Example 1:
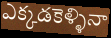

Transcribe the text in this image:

ఎక్కడకెళ్ళినా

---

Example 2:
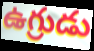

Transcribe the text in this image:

ఉగ్రుడు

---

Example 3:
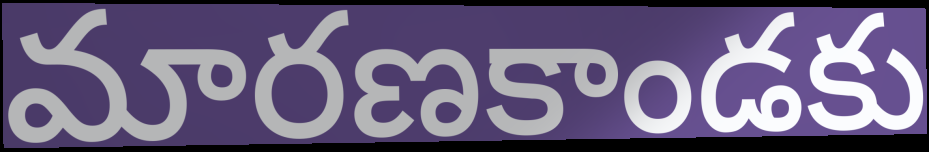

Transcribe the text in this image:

మారణకాండకు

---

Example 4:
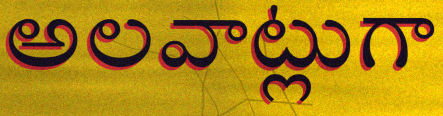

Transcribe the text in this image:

అలవాట్లుగా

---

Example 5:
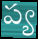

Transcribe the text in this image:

ప్య